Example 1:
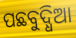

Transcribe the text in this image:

ପଛବୁଦ୍ଧିଆ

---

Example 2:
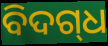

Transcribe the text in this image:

ବିଦଗ୍‌ଧ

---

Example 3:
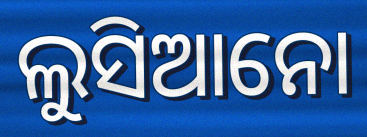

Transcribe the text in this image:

ଲୁସିଆନୋ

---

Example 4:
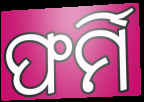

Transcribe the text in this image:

ଫର୍ମି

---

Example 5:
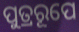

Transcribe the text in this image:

ପୁତ୍ରରୂପେ